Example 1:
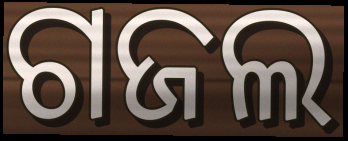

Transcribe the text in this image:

ଗଜଲ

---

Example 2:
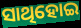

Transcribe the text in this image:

ସାଥିହୋଇ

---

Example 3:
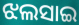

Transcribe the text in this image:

ଝଲସାଇ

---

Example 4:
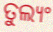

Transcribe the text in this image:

ତୁଲ୍ୟଂ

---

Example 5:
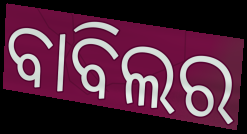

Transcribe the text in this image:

ବାବିଲର